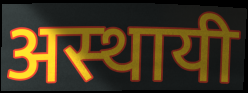
अस्थायी